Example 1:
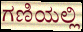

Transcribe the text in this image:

ಗಣಿಯಲ್ಲಿ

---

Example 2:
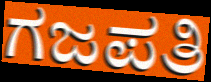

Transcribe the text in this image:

ಗಜಪತಿ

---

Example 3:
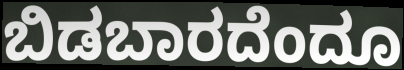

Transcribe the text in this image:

ಬಿಡಬಾರದೆಂದೂ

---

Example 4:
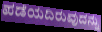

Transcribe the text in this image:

ಪಡೆಯದಿರುವುದನ್ನು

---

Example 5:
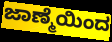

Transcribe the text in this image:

ಜಾಣ್ಮೆಯಿಂದ